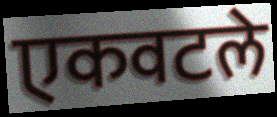
एकवटले